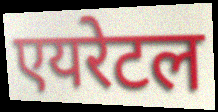
एयरेटल